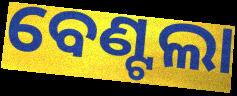
ବେଣ୍ଟଲା